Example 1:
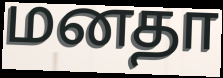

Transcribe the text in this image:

மனதா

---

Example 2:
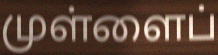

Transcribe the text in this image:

முள்ளைப்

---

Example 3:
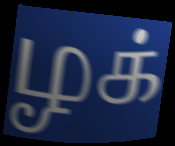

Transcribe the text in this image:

ழக்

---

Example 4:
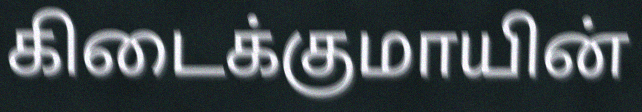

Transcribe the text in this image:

கிடைக்குமாயின்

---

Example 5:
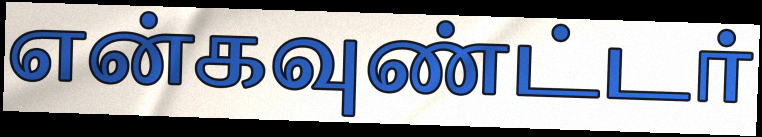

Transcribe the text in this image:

என்கவுண்ட்டர்